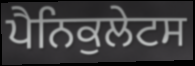
ਪੈਨਿਕੁਲੇਟਸ